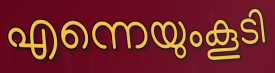
എന്നെയുംകൂടി